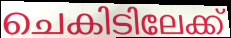
ചെകിടിലേക്ക്